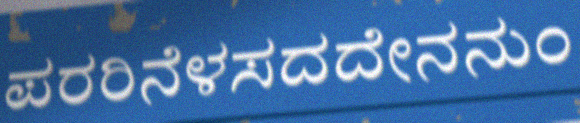
ಪರರಿನೆಳಸದದೇನನುಂ